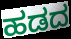
ಹಡದ